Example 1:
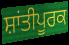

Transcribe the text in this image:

ਸ਼ਾਂਤੀਪੂਰਕ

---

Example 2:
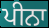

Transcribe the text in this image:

ਪੀਨਾ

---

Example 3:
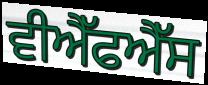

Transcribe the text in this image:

ਵੀਐੱਫਐੱਸ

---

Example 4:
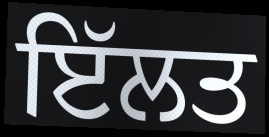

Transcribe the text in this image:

ਇੱਲਤ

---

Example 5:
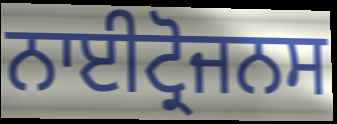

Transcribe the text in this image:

ਨਾਈਟ੍ਰੋਜਨਸ